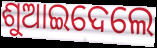
ଶୁଆଇଦେଲେ